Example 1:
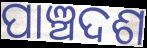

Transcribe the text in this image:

ପାଞ୍ଚଦଶ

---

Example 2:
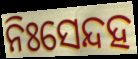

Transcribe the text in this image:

ନିଃସେନ୍ଦହ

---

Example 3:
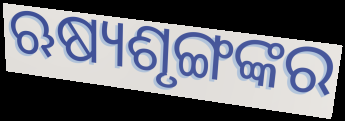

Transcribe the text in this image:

ଋଷ୍ୟଶୃଙ୍ଗଙ୍କର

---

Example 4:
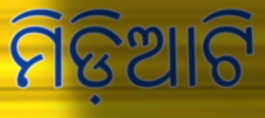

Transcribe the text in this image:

ମିଡ଼ିଆଟି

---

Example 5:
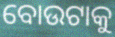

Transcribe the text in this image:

ବୋଉଟାକୁ